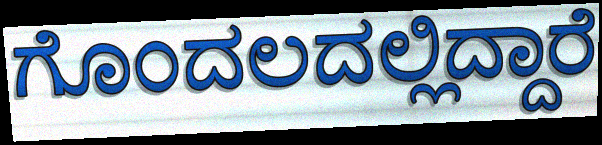
ಗೊಂದಲದಲ್ಲಿದ್ದಾರೆ